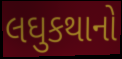
લઘુકથાનો